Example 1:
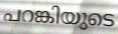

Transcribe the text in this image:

പറങ്കിയുടെ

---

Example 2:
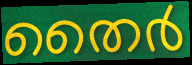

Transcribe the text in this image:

തൈർ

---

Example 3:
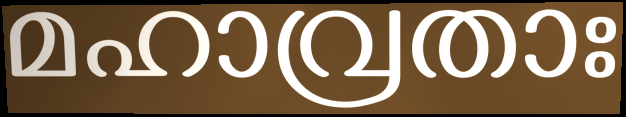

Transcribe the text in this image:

മഹാവ്രതാഃ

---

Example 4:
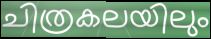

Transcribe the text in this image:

ചിത്രകലയിലും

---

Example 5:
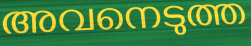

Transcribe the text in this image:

അവനെടുത്ത